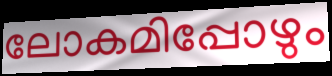
ലോകമിപ്പോഴും